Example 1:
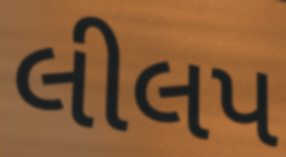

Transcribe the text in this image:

લીલપ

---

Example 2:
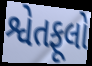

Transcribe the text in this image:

શ્વેતફૂલો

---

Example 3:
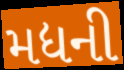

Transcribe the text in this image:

મદ્યની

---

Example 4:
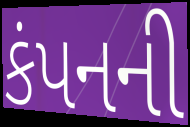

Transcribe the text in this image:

કંપનની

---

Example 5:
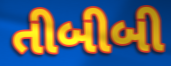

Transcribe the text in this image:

તીબીબી